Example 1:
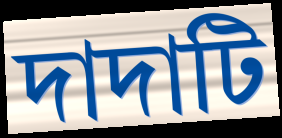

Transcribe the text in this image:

দাদাটি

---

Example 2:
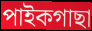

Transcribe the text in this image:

পাইকগাছা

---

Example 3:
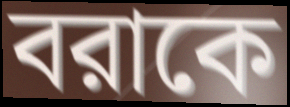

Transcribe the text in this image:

বরাকে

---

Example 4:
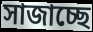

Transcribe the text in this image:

সাজাচ্ছে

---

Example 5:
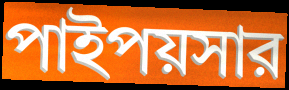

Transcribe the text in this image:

পাইপয়সার